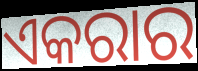
ଏକରାର